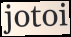
jotoi